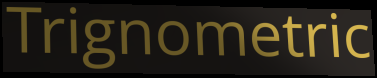
Trignometric